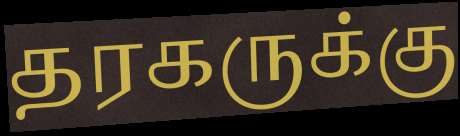
தரகருக்கு